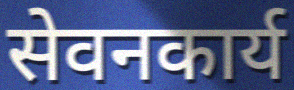
सेवनकार्य